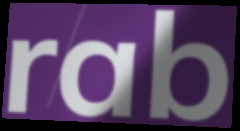
rab